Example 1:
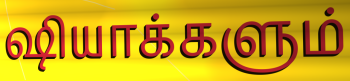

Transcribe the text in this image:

ஷியாக்களும்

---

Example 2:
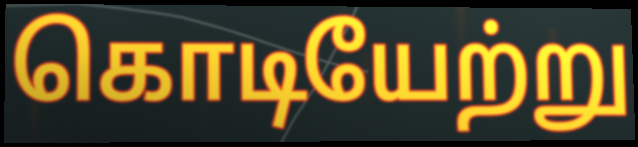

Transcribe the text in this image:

கொடியேற்று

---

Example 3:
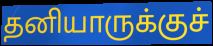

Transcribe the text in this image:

தனியாருக்குச்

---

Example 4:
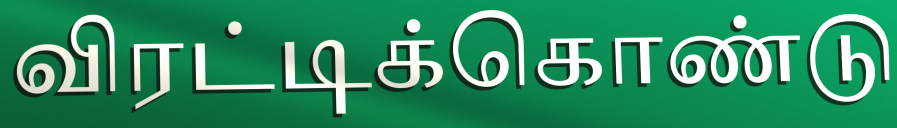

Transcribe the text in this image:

விரட்டிக்கொண்டு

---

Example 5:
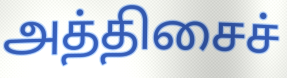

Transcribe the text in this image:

அத்திசைச்